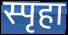
स्पृहा